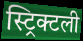
स्ट्रिक्टली